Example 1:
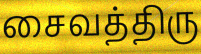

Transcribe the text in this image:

சைவத்திரு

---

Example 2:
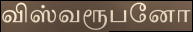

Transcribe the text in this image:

விஸ்வரூபனோ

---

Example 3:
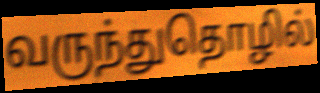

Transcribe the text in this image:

வருந்துதொழில்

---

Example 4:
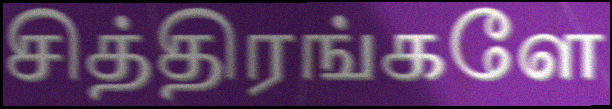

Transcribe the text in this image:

சித்திரங்களே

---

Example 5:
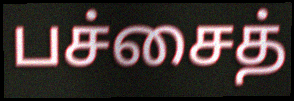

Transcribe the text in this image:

பச்சைத்